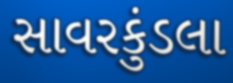
સાવરકુંડલા